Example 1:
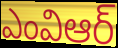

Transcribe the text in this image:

ఎంవిఆర్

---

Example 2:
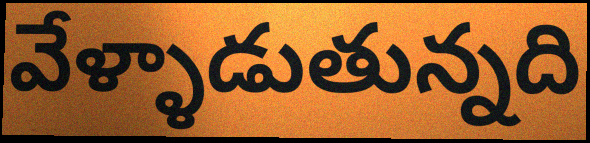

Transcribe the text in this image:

వేళ్ళాడుతున్నది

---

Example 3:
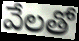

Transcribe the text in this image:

వేలతో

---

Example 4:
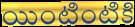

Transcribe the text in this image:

యింటింటికి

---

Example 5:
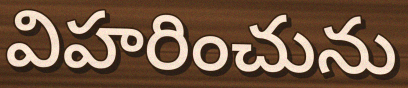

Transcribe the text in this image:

విహరించును